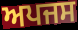
ਅਪਜਸ